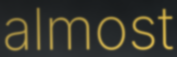
almost